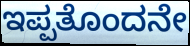
ಇಪ್ಪತೊಂದನೇ